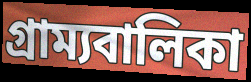
গ্রাম্যবালিকা